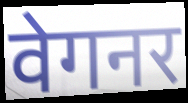
वेगनर